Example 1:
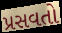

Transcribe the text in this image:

પ્રસવતો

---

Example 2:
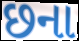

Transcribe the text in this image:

છના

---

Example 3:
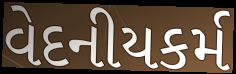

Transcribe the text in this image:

વેદનીયકર્મ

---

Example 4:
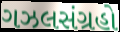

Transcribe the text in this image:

ગઝલસંગ્રહો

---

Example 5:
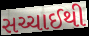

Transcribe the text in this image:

સચ્ચાઈથી